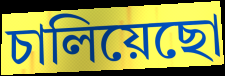
চালিয়েছো